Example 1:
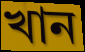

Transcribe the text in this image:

খান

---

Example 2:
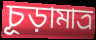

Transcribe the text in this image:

চূড়ামাত্র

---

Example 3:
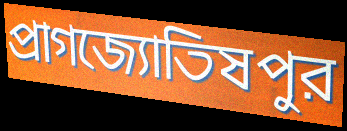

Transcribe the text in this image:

প্রাগজ্যোতিষপুর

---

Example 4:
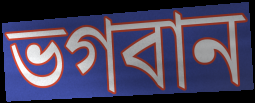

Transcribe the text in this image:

ভগবান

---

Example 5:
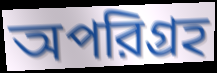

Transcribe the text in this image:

অপরিগ্রহ